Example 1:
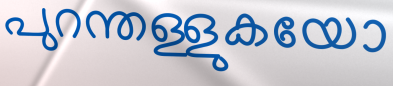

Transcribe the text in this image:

പുറന്തള്ളുകയോ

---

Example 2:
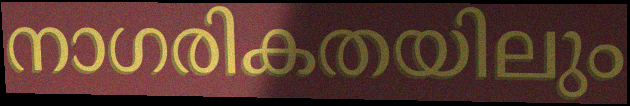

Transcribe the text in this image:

നാഗരികതയിലും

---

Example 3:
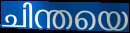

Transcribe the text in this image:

ചിന്തയെ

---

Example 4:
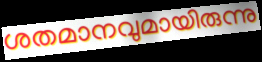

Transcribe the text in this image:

ശതമാനവുമായിരുന്നു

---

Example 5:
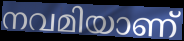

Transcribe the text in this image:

നവമിയാണ്